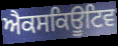
ਐਕਸਕਿਊਟਿਵ